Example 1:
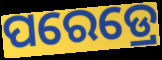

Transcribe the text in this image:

ପରେଡ୍ରେ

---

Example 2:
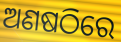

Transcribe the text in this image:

ଅଣଷଠିରେ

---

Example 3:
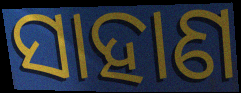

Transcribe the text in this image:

ସାହାଣ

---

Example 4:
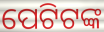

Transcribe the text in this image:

ପେଟିଟଙ୍କ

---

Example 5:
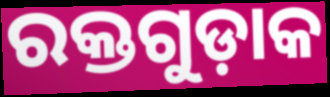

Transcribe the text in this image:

ରକ୍ତଗୁଡ଼ାକ